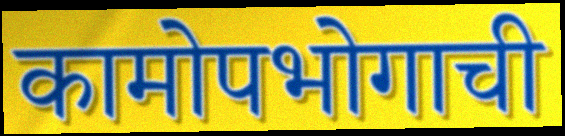
कामोपभोगाची